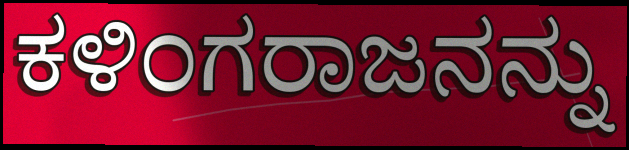
ಕಳಿಂಗರಾಜನನ್ನು